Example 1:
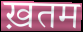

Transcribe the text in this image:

ख़तम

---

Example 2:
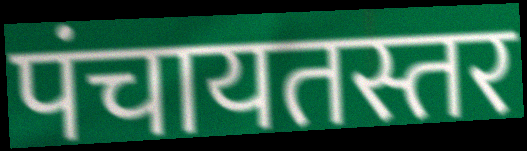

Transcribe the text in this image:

पंचायतस्तर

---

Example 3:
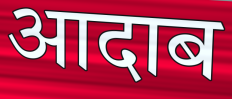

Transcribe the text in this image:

आदाब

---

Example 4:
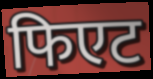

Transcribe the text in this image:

फिएट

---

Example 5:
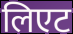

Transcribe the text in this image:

लिएट